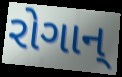
રોગાન્